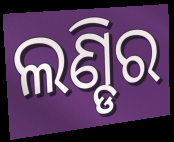
ଲଣ୍ଡିର